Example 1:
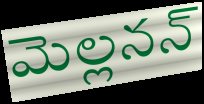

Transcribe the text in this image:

మెల్లనన్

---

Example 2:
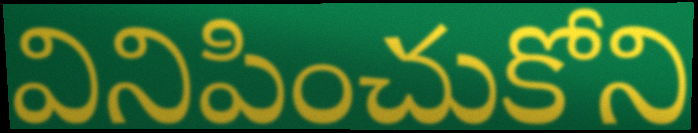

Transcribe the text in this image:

వినిపించుకోని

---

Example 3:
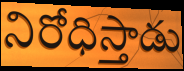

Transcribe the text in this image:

నిరోధిస్తాడు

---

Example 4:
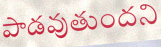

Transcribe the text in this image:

పాడవుతుందని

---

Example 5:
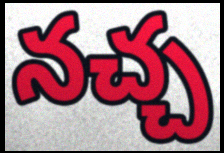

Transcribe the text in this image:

నచ్చ